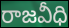
రాజవీధి